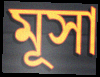
মূসা